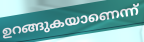
ഉറങ്ങുകയാണെന്ന്